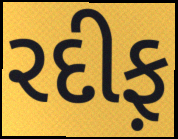
રદીફ઼